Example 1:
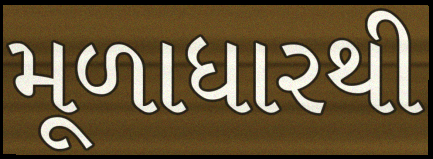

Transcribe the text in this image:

મૂળાધારથી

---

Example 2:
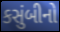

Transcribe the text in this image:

કસુંબીનો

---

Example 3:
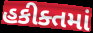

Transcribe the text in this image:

હકીક્તમાં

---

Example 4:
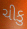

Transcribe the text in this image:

ચીકુ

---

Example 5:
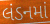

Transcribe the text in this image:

લંડનમાં